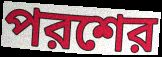
পরশের